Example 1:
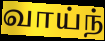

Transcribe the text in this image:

வாய்ந்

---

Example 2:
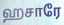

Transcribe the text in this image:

ஹசாரே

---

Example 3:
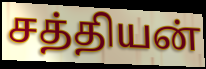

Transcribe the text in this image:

சத்தியன்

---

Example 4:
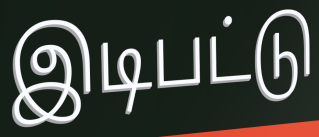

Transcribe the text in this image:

இடிபட்டு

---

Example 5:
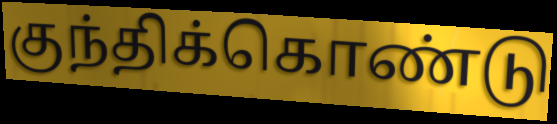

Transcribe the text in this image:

குந்திக்கொண்டு